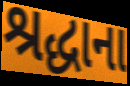
શ્રદ્ધાના